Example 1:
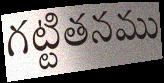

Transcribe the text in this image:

గట్టితనము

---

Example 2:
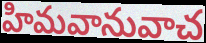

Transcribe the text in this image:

హిమవానువాచ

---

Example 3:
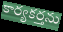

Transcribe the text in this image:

కార్యకర్తను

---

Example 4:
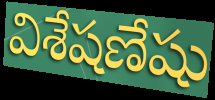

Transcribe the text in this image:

విశేషణేషు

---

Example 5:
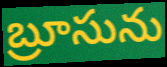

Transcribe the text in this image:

బ్రూసును